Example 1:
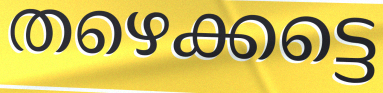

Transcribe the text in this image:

തഴെക്കട്ടെ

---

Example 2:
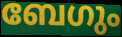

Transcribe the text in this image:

ബേഗും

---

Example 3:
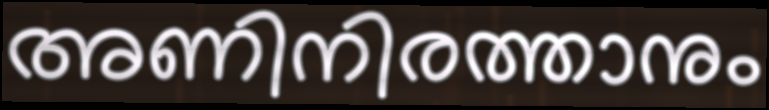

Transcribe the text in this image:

അണിനിരത്താനും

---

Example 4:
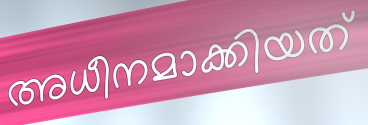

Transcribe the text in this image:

അധീനമാക്കിയത്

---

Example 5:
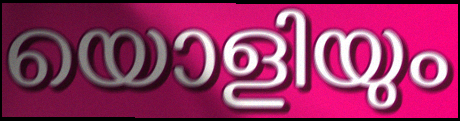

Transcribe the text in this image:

യൊളിയും